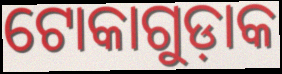
ଟୋକାଗୁଡ଼ାକ